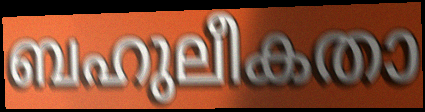
ബഹുലീകതാ